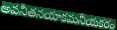
అవనీతనయాకమనీయకరం